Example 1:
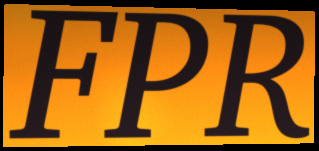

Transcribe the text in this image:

FPR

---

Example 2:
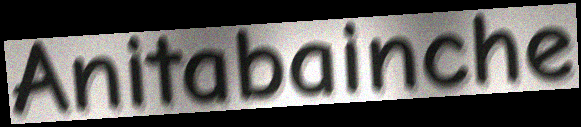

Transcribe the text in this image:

Anitabainche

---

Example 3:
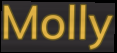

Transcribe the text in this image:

Molly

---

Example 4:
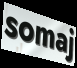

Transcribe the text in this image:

somaj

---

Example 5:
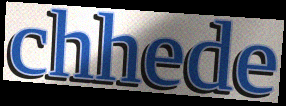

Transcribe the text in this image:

chhede